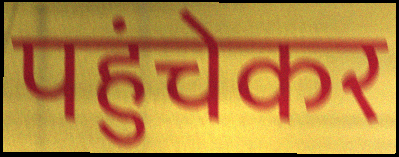
पहुंचेकर